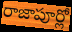
రాజాపూర్లో